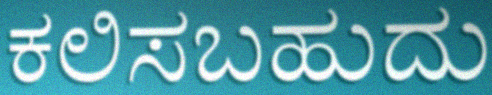
ಕಲಿಸಬಹುದು